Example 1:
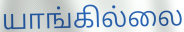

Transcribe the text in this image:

யாங்கில்லை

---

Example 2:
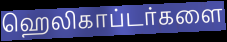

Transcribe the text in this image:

ஹெலிகாப்டர்களை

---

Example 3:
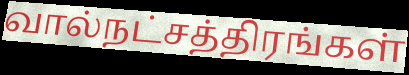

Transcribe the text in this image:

வால்நட்சத்திரங்கள்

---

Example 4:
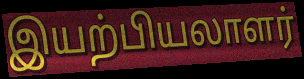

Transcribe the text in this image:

இயற்பியலாளர்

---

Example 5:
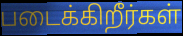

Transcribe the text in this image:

படைக்கிறீர்கள்